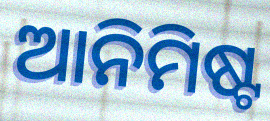
ଆନିମିଷ୍ଟ